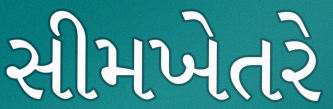
સીમખેતરે